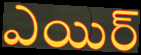
ఎయిర్